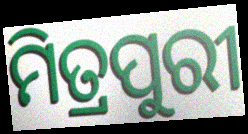
ମିତ୍ରପୁରୀ